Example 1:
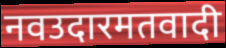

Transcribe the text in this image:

नवउदारमतवादी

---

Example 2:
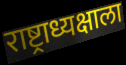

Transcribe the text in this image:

राष्ट्राध्यक्षाला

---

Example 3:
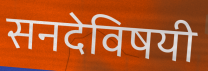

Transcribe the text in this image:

सनदेविषयी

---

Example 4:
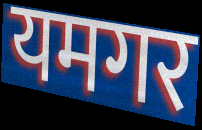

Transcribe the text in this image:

यमगर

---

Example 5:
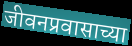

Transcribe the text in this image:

जीवनप्रवासाच्या